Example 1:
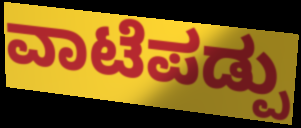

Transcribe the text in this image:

ವಾಟೆಪಡ್ಪು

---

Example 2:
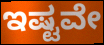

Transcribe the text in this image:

ಇಷ್ಟವೇ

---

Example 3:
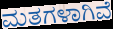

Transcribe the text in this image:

ಮತಗಳಾಗಿವೆ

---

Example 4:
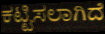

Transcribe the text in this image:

ಕಟ್ಟಿಸಲಾಗಿದೆ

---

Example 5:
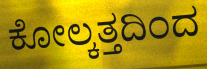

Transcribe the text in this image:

ಕೋಲ್ಕತ್ತದಿಂದ